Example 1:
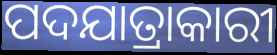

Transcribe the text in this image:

ପଦଯାତ୍ରାକାରୀ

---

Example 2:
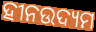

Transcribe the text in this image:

ହୀନଉଦ୍ୟମ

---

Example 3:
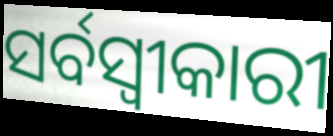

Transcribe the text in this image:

ସର୍ବସ୍ଵୀକାରୀ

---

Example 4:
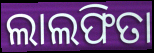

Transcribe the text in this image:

ଲାଲଫିତା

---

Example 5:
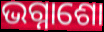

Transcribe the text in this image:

ଭଗ୍ନାଶୋ